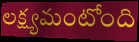
లక్ష్యమంటోంది